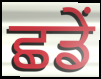
ਛਡੇਂ